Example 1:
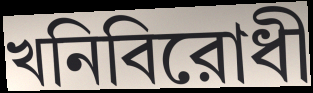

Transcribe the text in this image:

খনিবিরোধী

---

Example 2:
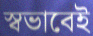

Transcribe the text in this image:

স্বভাবেই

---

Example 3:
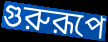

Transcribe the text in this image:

গুরুরূপে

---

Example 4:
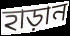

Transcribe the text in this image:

হাড়ান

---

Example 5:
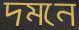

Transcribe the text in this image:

দমনে